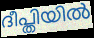
ദീപ്തിയിൽ